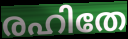
രഹിതേ